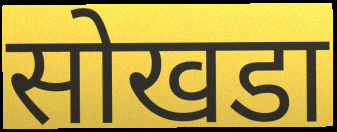
सोखडा